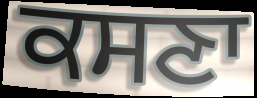
ਕਸਣਾ